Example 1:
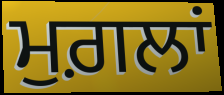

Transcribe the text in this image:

ਮੁਗ਼ਲਾਂ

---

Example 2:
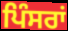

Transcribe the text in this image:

ਪਿੰਸਰਾਂ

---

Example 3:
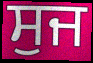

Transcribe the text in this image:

ਸੁਜ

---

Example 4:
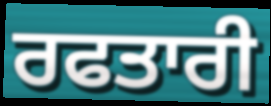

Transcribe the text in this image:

ਰਫਤਾਰੀ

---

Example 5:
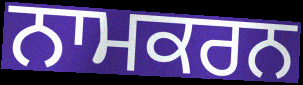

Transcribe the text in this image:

ਨਾਮਕਰਨ